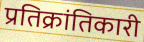
प्रतिक्रांतिकारी